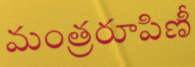
మంత్రరూపిణీ